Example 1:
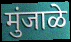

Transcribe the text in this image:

मुंजाळे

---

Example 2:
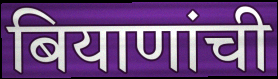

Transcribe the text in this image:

बियाणांची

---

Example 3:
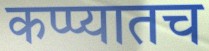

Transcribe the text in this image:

कप्प्यातच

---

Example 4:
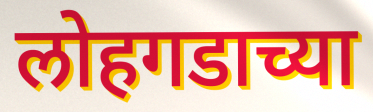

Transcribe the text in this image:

लोहगडाच्या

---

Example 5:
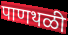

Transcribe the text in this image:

पाणथळी